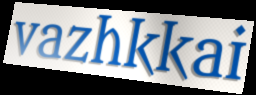
vazhkkai